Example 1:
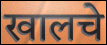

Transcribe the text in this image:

खालचे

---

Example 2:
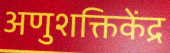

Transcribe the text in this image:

अणुशक्तिकेंद्र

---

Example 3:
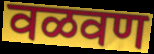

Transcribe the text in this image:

वळवण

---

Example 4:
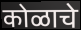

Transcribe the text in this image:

कोळाचे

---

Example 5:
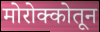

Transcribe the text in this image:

मोरोक्कोतून